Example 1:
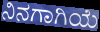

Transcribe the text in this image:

ನಿನಗಾಗಿಯೆ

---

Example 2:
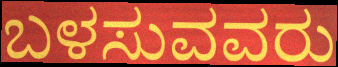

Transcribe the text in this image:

ಬಳಸುವವರು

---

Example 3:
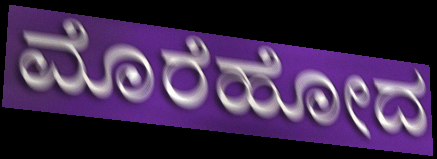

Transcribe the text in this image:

ಮೊರೆಹೋದ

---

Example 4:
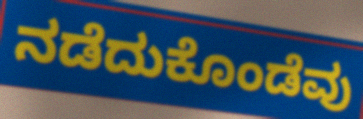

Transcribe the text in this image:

ನಡೆದುಕೊಂಡೆವು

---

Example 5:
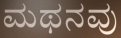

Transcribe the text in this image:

ಮಥನವು